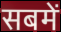
सबमें